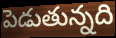
పెడుతున్నది